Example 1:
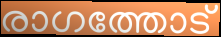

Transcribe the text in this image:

രാഗത്തോട്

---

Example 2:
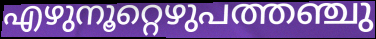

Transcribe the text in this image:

എഴുനൂറ്റെഴുപത്തഞ്ചു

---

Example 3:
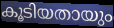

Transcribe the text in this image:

കൂടിയതായും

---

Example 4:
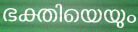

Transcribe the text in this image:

ഭക്തിയെയും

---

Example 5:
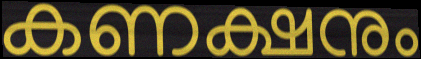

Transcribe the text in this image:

കണക്ഷനും